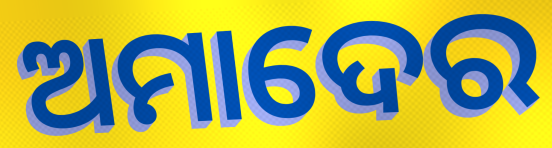
ଅମାଦେର